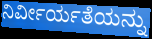
ನಿರ್ವೀರ್ಯತೆಯನ್ನು